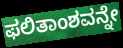
ಫಲಿತಾಂಶವನ್ನೇ